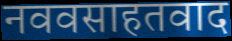
नववसाहतवाद